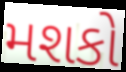
મશકો